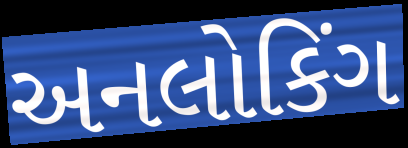
અનલોકિંગ